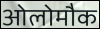
ओलोमौक